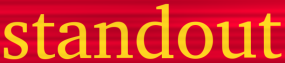
standout